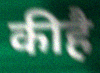
कीहै